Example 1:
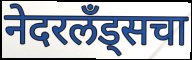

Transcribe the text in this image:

नेदरलँड्सचा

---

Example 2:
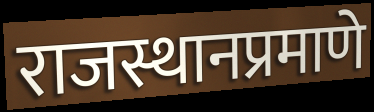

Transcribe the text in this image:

राजस्थानप्रमाणे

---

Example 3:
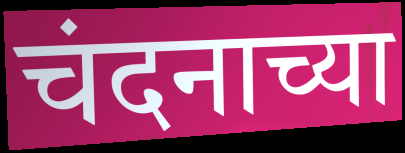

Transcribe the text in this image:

चंदनाच्या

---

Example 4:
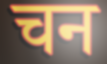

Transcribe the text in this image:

चन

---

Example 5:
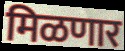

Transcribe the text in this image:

मिळणार